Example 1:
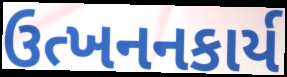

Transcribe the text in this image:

ઉત્ખનનકાર્ય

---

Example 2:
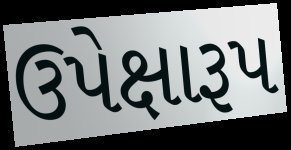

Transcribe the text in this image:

ઉપેક્ષારૂપ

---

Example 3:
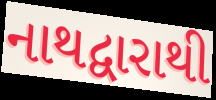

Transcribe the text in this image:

નાથદ્વારાથી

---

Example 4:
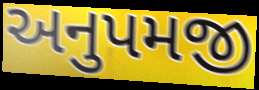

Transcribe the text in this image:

અનુપમજી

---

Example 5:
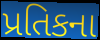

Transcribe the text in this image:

પ્રતિકના